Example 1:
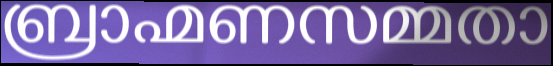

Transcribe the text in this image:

ബ്രാഹ്മണസമ്മതാ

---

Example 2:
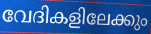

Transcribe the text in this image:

വേദികളിലേക്കും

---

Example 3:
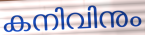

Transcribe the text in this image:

കനിവിനും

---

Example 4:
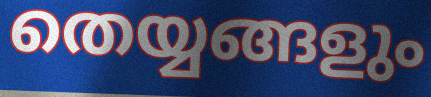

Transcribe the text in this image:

തെയ്യങ്ങളും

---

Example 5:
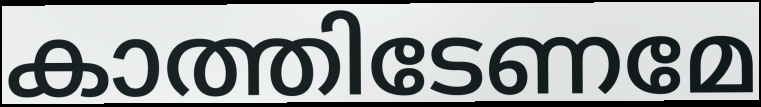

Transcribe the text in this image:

കാത്തിടേണമേ